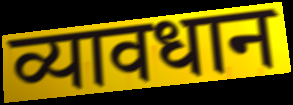
व्यावधान